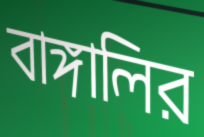
বাঙ্গালির